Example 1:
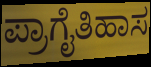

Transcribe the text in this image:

ಪ್ರಾಗೈತಿಹಾಸ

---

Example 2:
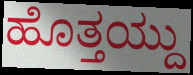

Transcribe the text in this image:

ಹೊತ್ತಯ್ದು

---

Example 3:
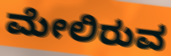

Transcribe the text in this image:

ಮೇಲಿರುವ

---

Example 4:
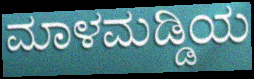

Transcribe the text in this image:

ಮಾಳಮಡ್ಡಿಯ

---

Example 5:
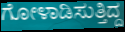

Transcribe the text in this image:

ಗೋಳಾಡಿಸುತ್ತಿದ್ದ